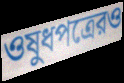
ওষুধপত্রেরও